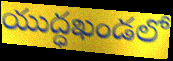
యుద్ధఖండలో